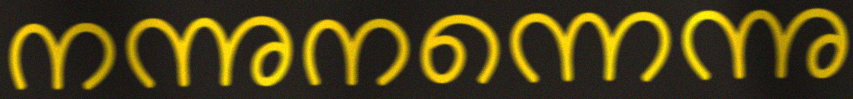
നന്നുനന്നെന്നു